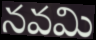
నవమి